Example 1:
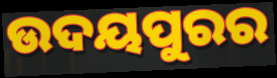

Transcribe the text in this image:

ଉଦୟପୁରର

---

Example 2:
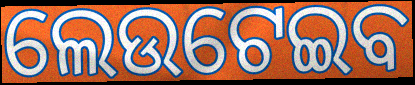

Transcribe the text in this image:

ଲେଉଟେଇବ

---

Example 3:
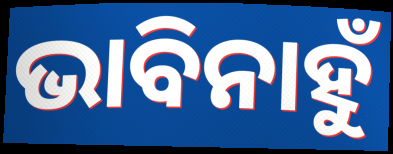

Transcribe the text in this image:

ଭାବିନାହୁଁ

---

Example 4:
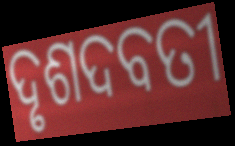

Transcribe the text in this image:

ଦୃଶଦବତୀ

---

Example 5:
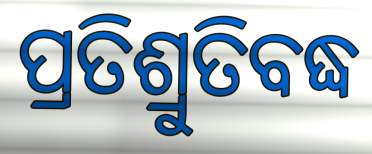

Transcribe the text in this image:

ପ୍ରତିଶ୍ରୁତିବଦ୍ଧ